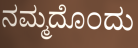
ನಮ್ಮದೊಂದು